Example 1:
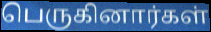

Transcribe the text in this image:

பெருகினார்கள்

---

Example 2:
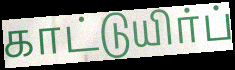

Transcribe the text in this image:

காட்டுயிர்ப்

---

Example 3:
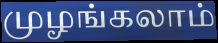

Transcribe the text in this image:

முழங்கலாம்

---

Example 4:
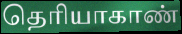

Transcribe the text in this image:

தெரியாகாண்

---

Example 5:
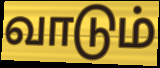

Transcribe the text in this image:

வாடும்